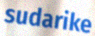
sudarike